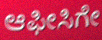
ಆಫೀಸಿಗೇ